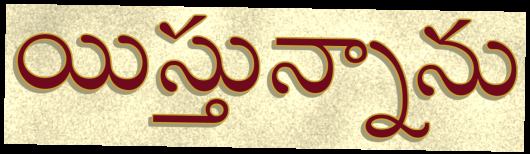
యిస్తున్నాను